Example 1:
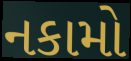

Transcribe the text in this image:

નકામો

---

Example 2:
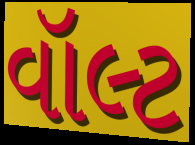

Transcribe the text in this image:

વૉલ્ટ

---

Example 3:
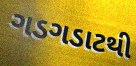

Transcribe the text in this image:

ગડગડાટથી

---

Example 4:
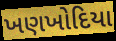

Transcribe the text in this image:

ખણખોદિયા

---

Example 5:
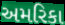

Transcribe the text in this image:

અમરિકા